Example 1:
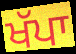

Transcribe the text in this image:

ਖੱਪਾ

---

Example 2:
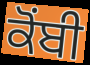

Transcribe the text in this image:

ਕੋਂਬੀ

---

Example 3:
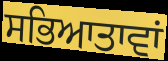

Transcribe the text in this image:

ਸਭਿਆਤਾਵਾਂ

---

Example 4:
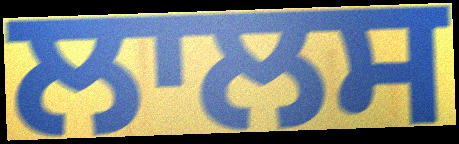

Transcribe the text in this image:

ਲਾਲਸ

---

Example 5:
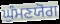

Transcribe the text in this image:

ਘੁੰਮਣਯੋਗ